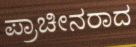
ಪ್ರಾಚೀನರಾದ